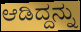
ಆಡಿದ್ದನ್ನು